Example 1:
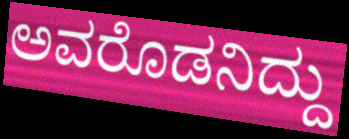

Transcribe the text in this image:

ಅವರೊಡನಿದ್ದು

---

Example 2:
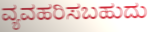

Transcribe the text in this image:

ವ್ಯವಹರಿಸಬಹುದು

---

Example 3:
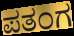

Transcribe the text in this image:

ಪತಂಗ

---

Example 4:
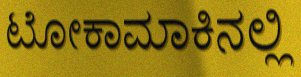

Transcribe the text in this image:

ಟೋಕಾಮಾಕಿನಲ್ಲಿ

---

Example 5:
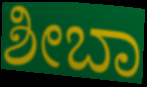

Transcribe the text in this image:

ಶೀಬಾ